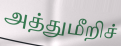
அத்துமீறிச்